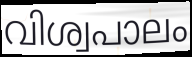
വിശ്വപാലം